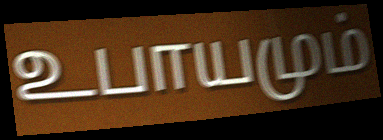
உபாயமும்